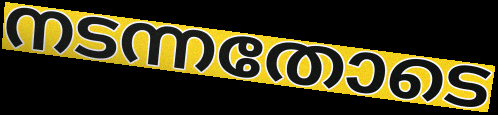
നടന്നതോടെ